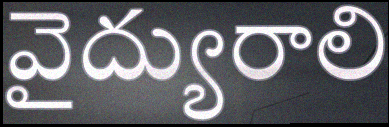
వైద్యురాలి